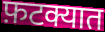
फ़टक्यात